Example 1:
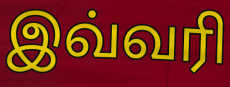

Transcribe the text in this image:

இவ்வரி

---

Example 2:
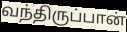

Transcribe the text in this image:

வந்திருப்பான்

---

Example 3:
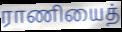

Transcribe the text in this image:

ராணியைத்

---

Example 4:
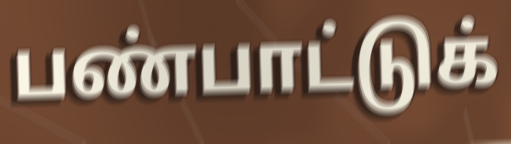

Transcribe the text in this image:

பண்பாட்டுக்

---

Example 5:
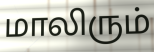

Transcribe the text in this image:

மாலிரும்